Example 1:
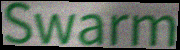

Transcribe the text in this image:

Swarm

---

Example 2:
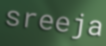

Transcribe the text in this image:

sreeja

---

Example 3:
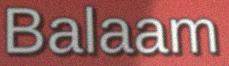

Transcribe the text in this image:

Balaam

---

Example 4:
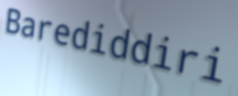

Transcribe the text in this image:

Barediddiri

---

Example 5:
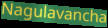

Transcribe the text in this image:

Nagulavancha